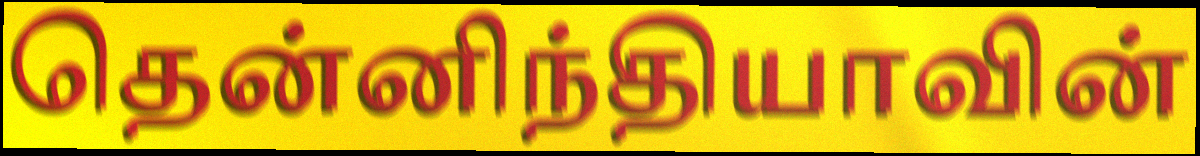
தென்னிந்தியாவின்